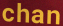
chan